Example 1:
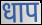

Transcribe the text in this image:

धाप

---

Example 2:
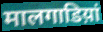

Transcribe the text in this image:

मालगाडिय़ां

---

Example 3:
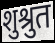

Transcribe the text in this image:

शुश्रुत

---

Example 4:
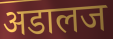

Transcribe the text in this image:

अडालज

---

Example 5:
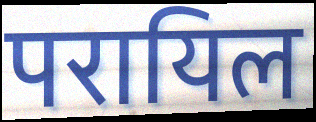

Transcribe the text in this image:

परायिल